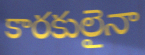
కారకులైనా